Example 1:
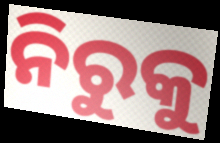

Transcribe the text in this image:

ନିରୁକୁ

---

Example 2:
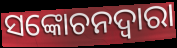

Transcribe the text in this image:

ସଙ୍କୋଚନଦ୍ୱାରା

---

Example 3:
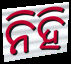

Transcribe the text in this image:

ନିହି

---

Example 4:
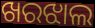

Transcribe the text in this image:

ଖରଝାଲ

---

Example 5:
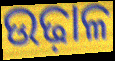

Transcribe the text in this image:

ଉଢ଼ାଳ